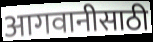
आगवानीसाठी